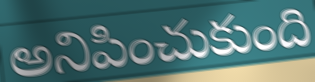
అనిపించుకుంది